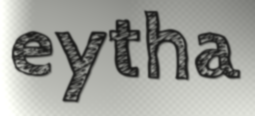
eytha